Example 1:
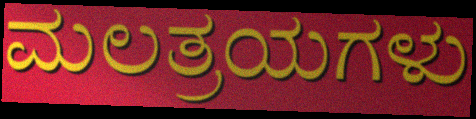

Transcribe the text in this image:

ಮಲತ್ರಯಗಳು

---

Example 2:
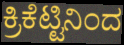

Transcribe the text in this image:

ಕ್ರಿಕೆಟ್ಟಿನಿಂದ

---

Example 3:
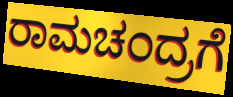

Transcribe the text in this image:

ರಾಮಚಂದ್ರಗೆ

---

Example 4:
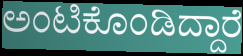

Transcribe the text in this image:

ಅಂಟಿಕೊಂಡಿದ್ದಾರೆ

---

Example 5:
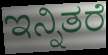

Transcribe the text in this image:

ಇನ್ನಿತರೆ